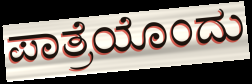
ಪಾತ್ರೆಯೊಂದು